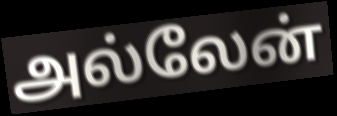
அல்லேன்